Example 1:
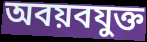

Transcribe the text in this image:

অবয়বযুক্ত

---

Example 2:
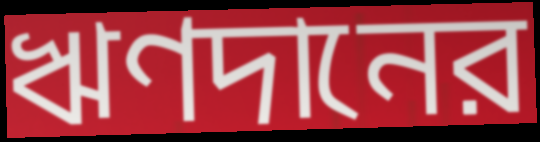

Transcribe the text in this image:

ঋণদানের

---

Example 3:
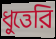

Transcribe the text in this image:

ধুত্তেরি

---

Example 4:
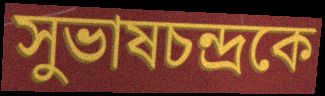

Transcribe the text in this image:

সুভাষচন্দ্রকে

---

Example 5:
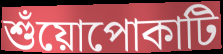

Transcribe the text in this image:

শুঁয়োপোকাটি